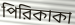
পিরিকাকা